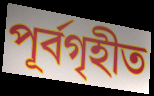
পূর্বগৃহীত